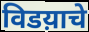
विडय़ाचे